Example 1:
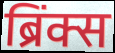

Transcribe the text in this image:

ब्रिंक्स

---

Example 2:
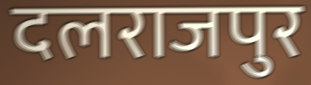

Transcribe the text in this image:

दलराजपुर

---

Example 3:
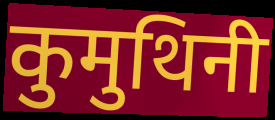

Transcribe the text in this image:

कुमुथिनी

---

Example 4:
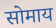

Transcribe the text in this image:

सोमाय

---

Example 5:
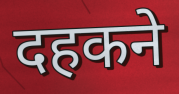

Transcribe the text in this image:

दहकने